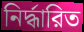
নির্দ্ধারিত